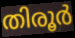
തിരൂർ